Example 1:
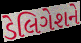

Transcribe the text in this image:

ડેલિગેશને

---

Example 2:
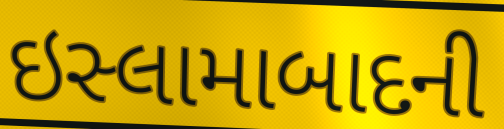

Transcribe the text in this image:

ઇસ્લામાબાદની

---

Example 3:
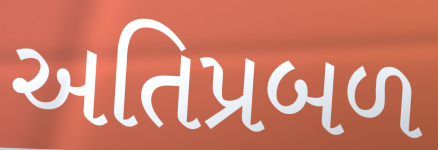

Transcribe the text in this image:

અતિપ્રબળ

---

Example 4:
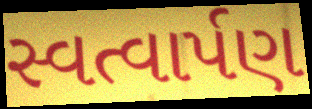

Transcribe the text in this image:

સ્વત્વાર્પણ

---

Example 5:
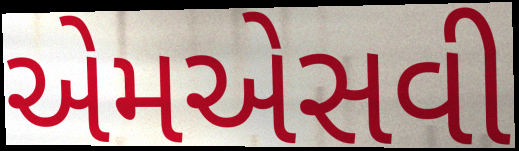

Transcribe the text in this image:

એમએસવી